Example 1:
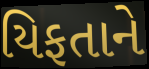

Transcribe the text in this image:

યિફતાને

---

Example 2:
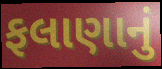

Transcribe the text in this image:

ફલાણાનું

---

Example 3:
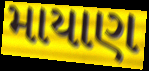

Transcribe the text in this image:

માયાણ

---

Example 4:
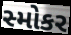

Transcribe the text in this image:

સ્મોકર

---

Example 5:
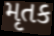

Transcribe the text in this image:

મૃતક